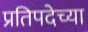
प्रतिपदेच्या